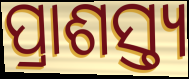
ପ୍ରାଶସ୍ତ୍ୟ